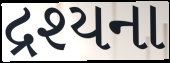
દ્રશ્યના